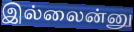
இல்லைன்னு